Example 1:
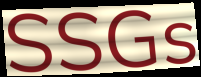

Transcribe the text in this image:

SSGs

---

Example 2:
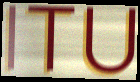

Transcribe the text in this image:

ITU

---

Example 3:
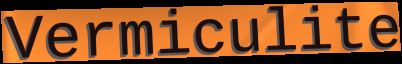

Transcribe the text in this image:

Vermiculite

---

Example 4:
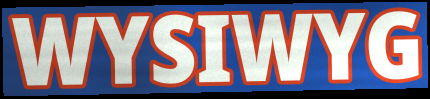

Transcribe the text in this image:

WYSIWYG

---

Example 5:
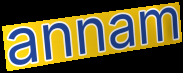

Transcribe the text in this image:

annam